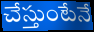
చేస్తుంటేనే